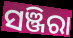
ସଞ୍ଜିରା